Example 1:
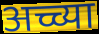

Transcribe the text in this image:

अच्च्या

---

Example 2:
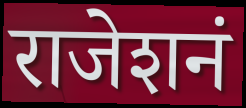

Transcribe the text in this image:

राजेशनं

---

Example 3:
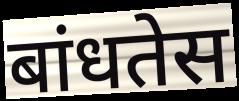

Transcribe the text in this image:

बांधतेस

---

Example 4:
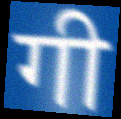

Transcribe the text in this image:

गी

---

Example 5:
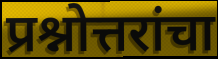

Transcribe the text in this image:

प्रश्नोत्तरांचा